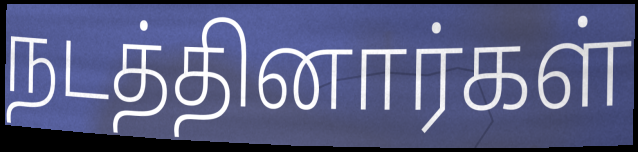
நடத்தினார்கள்